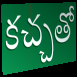
కచ్చతో